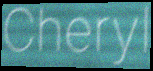
Cheryl